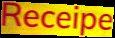
Receipe